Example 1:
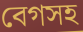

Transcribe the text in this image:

বেগসহ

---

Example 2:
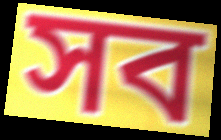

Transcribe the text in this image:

সব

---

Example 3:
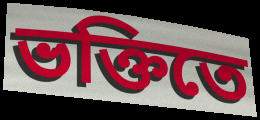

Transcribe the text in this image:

ভক্তিতে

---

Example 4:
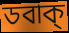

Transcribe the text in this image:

ডবাক্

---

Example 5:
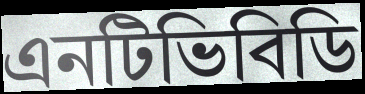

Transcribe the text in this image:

এনটিভিবিডি